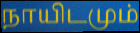
நாயிடமும்